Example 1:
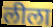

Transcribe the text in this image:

लीला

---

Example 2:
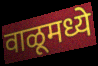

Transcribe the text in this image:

वाळूमध्ये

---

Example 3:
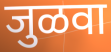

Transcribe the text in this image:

जुळवा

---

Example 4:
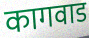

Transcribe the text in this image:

कागवाड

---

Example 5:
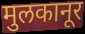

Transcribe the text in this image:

मुलकानूर